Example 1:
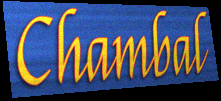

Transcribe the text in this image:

Chambal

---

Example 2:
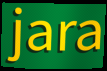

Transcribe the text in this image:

jara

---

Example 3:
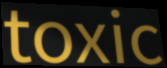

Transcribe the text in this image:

toxic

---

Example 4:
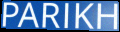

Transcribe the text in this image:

PARIKH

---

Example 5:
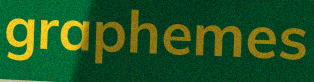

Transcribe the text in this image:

graphemes